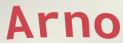
Arno